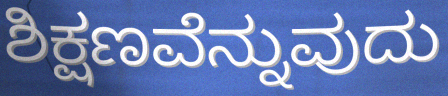
ಶಿಕ್ಷಣವೆನ್ನುವುದು